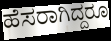
ಹೆಸರಾಗಿದ್ದರೂ